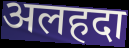
अलहदा